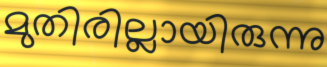
മുതിരില്ലായിരുന്നു